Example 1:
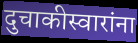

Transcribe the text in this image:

दुचाकीस्वारांना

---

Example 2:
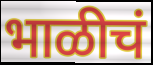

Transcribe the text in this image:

भाळीचं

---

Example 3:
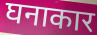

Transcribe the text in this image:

घनाकार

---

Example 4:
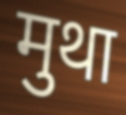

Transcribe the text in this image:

मुथा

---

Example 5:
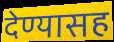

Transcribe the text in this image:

देण्यासह